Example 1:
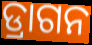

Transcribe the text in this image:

ଡ୍ରାଗନ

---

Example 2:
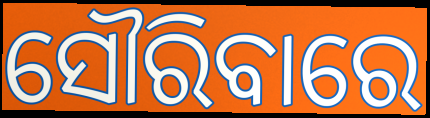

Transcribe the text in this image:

ସୌରିବାରେ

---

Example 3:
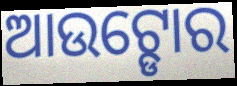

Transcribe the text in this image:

ଆଉଟ୍ଡୋର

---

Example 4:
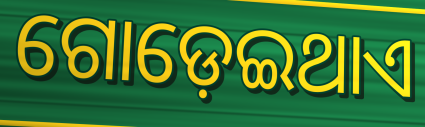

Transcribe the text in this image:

ଗୋଡ଼େଇଥାଏ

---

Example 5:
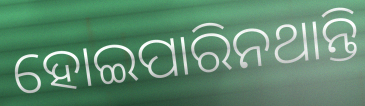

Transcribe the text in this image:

ହୋଇପାରିନଥାନ୍ତି